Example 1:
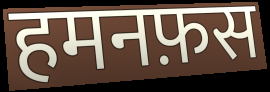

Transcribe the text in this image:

हमनफ़स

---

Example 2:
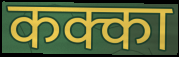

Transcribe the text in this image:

कक्का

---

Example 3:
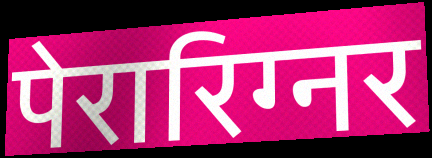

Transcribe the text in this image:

पेरारिग्नर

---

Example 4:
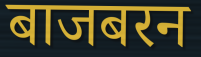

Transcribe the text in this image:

बाजबरन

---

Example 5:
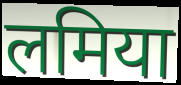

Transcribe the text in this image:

लमिया